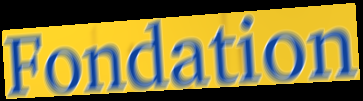
Fondation